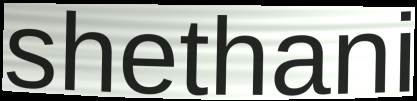
shethani